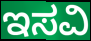
ಇಸವಿ